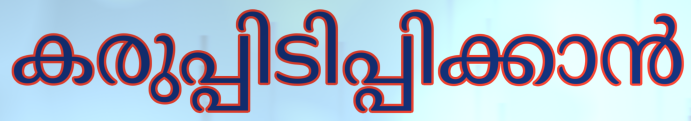
കരുപ്പിടിപ്പിക്കാൻ